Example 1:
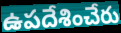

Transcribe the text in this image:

ఉపదేశించేరు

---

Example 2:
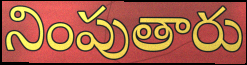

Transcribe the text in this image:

నింపుతారు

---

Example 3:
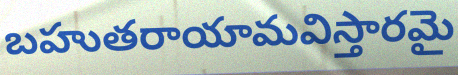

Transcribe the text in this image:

బహుతరాయామవిస్తారమై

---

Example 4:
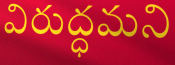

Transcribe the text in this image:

విరుద్ధమని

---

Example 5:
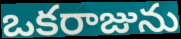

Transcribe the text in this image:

ఒకరాజును